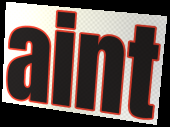
aint